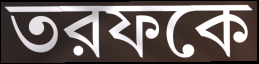
তরফকে